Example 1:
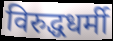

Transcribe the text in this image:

विरुद्धधर्मी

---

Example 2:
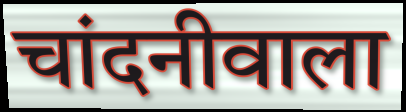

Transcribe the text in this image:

चांदनीवाला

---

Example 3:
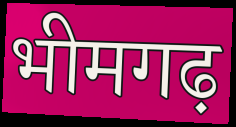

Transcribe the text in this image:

भीमगढ़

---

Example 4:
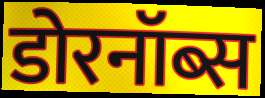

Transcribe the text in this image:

डोरनॉब्स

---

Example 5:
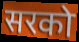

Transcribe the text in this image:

सरको